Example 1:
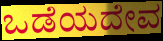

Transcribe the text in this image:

ಒಡೆಯದೇವ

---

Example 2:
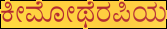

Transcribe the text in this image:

ಕೀಮೋಥೆರಪಿಯ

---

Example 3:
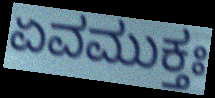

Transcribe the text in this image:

ಏವಮುಕ್ತಃ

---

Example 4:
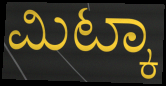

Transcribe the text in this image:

ಮಿಟ್ಕಾ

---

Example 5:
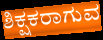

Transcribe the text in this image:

ಶಿಕ್ಷಕರಾಗುವ